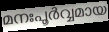
മനഃപൂർവ്വമായ